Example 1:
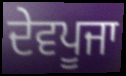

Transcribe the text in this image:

ਦੇਵਪੂਜਾ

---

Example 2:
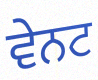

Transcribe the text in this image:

ਵੇਨਟ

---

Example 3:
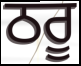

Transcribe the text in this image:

ਠਰੂ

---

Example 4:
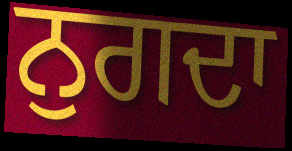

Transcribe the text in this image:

ਨੁਗਦਾ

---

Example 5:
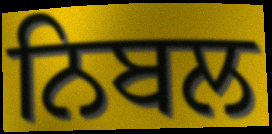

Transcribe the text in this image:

ਨਿਬਲ